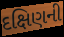
દક્ષિણની